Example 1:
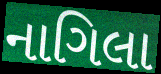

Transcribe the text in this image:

નાગિલા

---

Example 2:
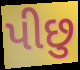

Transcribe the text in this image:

પીછુ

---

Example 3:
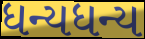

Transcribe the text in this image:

ધન્યધન્ય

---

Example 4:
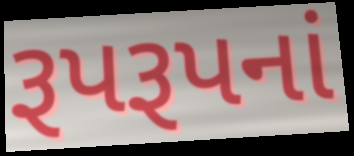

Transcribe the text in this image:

રૂપરૂપનાં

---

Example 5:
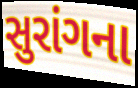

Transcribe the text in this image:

સુરાંગના